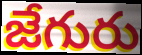
జేగురు